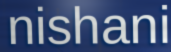
nishani